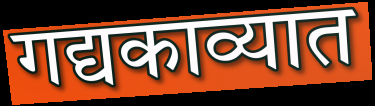
गद्यकाव्यात